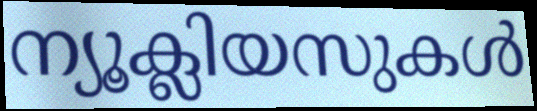
ന്യൂക്ലിയസുകൾ